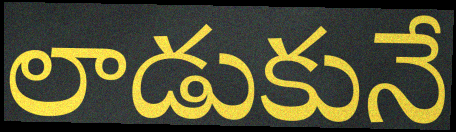
లాడుకునే